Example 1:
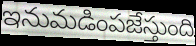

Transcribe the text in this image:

ఇనుమడింపజేస్తుంది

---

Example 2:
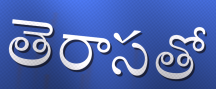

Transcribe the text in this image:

తెరాసతో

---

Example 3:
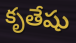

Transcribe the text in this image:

కృతేషు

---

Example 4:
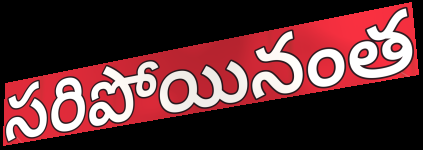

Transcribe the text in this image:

సరిపోయినంత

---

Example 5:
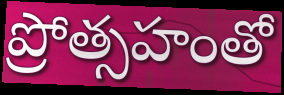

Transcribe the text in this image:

ప్రోత్సహంతో